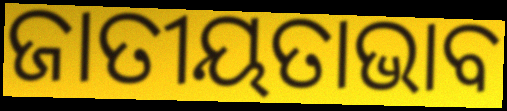
ଜାତୀୟତାଭାବ